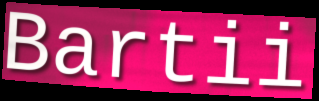
Bartii